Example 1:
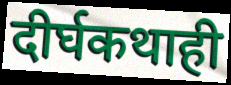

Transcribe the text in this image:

दीर्घकथाही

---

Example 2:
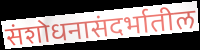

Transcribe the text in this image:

संशोधनासंदर्भातील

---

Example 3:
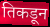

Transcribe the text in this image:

तिकडून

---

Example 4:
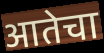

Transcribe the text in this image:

आतेचा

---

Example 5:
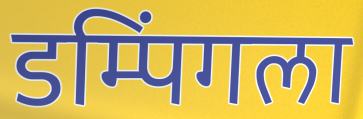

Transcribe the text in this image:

डम्पिंगला